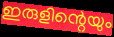
ഇരുളിന്റെയും